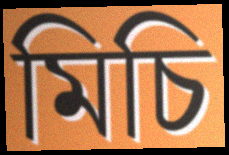
মিচি